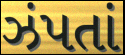
ઝંપતાં